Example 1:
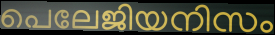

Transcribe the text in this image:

പെലേജിയനിസം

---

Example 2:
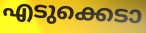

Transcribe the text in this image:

എടുക്കെടാ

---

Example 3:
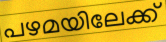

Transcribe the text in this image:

പഴമയിലേക്ക്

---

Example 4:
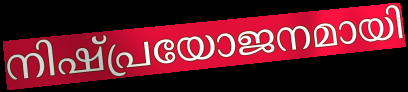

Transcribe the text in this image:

നിഷ്പ്രയോജനമായി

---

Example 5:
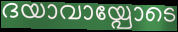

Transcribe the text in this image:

ദയാവായ്പോടെ